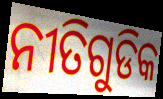
ନୀତିଗୁଡିକ